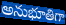
అనుభూతిగా